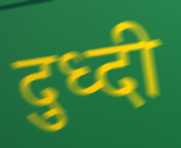
दुध्दी